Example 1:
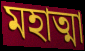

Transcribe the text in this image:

মহাত্মা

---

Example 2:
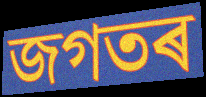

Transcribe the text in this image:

জগতৰ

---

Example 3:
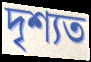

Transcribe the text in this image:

দৃশ্যত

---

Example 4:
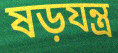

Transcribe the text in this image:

ষড়যন্ত্ৰ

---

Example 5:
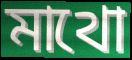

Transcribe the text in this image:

মাথো